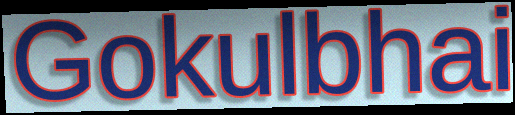
Gokulbhai